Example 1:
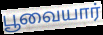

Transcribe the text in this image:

பூவையார்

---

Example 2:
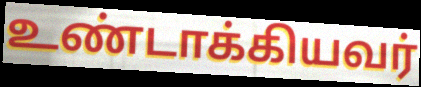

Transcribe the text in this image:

உண்டாக்கியவர்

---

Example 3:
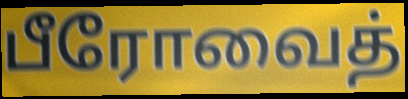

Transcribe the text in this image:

பீரோவைத்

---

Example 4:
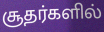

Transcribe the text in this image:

சூதர்களில்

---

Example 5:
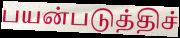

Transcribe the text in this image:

பயன்படுத்திச்